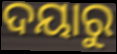
ଦୟାରୁ